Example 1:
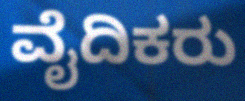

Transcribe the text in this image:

ವೈದಿಕರು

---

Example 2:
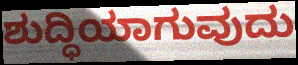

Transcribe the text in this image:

ಶುದ್ಧಿಯಾಗುವುದು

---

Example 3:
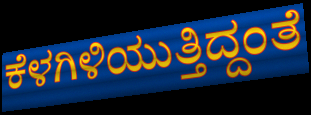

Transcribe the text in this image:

ಕೆಳಗಿಳಿಯುತ್ತಿದ್ದಂತೆ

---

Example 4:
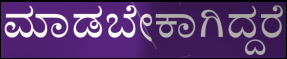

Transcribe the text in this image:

ಮಾಡಬೇಕಾಗಿದ್ದರೆ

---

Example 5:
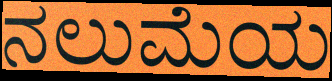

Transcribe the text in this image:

ನಲುಮೆಯ